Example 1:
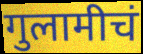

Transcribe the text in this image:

गुलामीचं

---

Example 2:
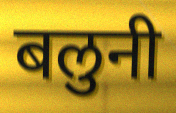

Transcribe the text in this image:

बलुनी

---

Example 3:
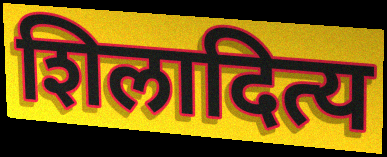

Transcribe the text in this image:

शिलादित्य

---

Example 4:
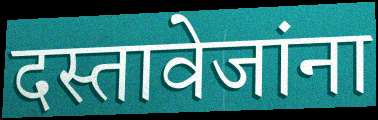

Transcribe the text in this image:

दस्तावेजांना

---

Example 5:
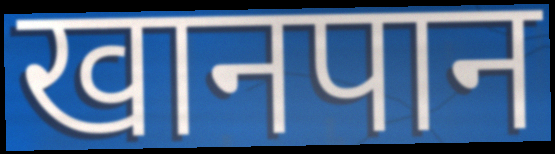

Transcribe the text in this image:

खानपान